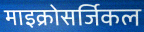
माइक्रोसर्जिकल